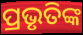
ପ୍ରଭୃତିଙ୍କ